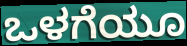
ಒಳಗೆಯೂ